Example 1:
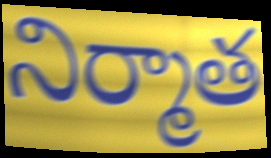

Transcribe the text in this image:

నిర్మాత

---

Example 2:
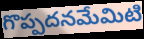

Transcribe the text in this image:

గొప్పదనమేమిటి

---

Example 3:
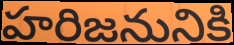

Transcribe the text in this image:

హరిజనునికి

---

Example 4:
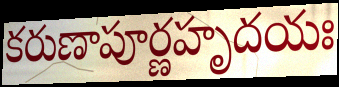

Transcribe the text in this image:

కరుణాపూర్ణహృదయః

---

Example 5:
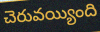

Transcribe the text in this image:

చెరువయ్యింది